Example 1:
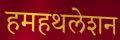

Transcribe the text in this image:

हमहथलेशन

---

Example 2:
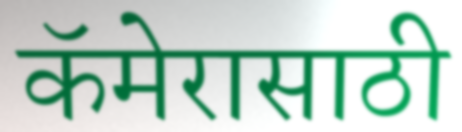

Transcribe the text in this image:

कॅमेरासाठी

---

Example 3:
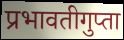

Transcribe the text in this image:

प्रभावतीगुप्ता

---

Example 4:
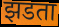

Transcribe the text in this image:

झडता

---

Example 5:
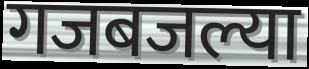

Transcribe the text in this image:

गजबजल्या